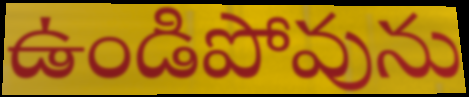
ఉండిపోవును